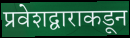
प्रवेशद्वाराकडून